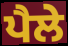
ਪੈਲੇ